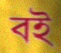
বই